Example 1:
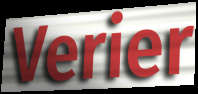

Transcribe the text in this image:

Verier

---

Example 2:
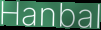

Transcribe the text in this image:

Hanbal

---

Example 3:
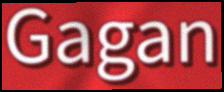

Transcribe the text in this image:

Gagan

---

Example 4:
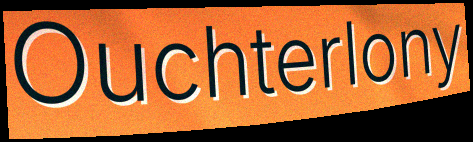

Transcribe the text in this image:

Ouchterlony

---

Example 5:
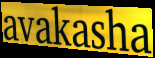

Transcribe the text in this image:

avakasha